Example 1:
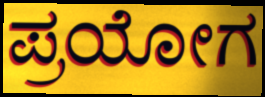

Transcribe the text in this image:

ಪ್ರಯೋಗ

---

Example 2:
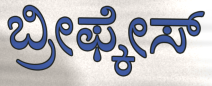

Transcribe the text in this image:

ಬ್ರೀಫ್ಕೇಸ್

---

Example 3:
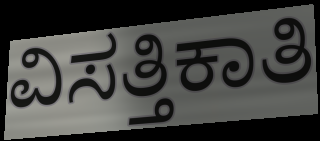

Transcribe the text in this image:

ವಿಸತ್ತಿಕಾತಿ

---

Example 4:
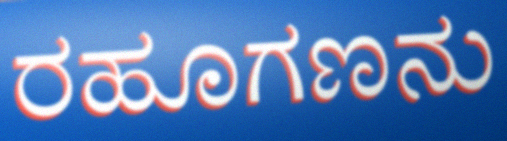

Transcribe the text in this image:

ರಹೂಗಣನು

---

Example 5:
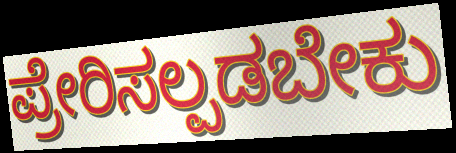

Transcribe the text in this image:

ಪ್ರೇರಿಸಲ್ಪಡಬೇಕು